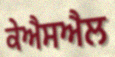
ਕੇਐਸਐਲ